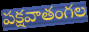
పక్షవాతంగల